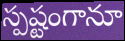
స్పష్టంగానూ